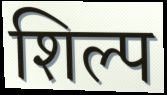
शिल्प